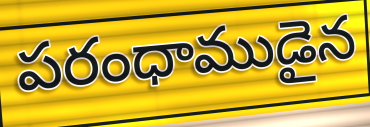
పరంధాముడైన